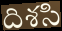
దిశసి